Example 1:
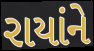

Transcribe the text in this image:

રાયાંને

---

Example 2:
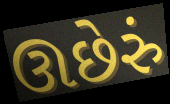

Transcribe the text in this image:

ઊછેરું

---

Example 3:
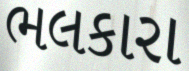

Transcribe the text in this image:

ભલકારા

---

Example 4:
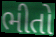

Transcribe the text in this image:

ભીતો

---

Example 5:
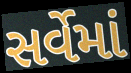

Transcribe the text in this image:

સર્વેમાં